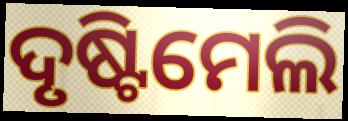
ଦୃଷ୍ଟିମେଲି